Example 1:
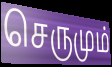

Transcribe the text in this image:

செருமும்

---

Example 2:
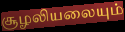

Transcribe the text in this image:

சூழலியலையும்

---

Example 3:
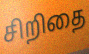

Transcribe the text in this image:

சிறிதை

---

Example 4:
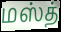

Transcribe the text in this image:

மஸ்த்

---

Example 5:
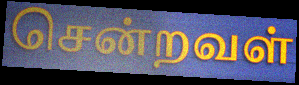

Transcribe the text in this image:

சென்றவள்